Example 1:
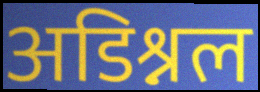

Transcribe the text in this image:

अडिश्नल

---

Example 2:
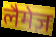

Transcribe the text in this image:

लैमेज़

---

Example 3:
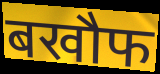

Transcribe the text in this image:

बखौफ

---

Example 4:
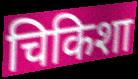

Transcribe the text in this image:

चिकिशा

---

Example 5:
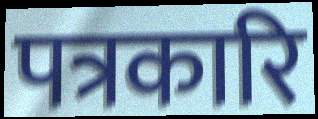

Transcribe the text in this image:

पत्रकारि